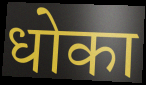
धोका